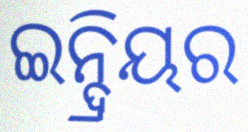
ଇନ୍ଦ୍ରିୟର